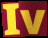
Iv